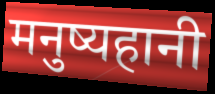
मनुष्यहानी